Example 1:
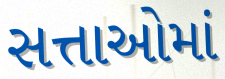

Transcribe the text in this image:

સત્તાઓમાં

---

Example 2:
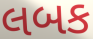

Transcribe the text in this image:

લબક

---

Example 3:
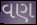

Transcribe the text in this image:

વણ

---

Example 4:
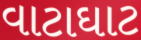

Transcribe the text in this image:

વાટાઘાટ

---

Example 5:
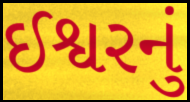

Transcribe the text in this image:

ઈશ્વરનું